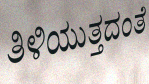
ತಿಳಿಯುತ್ತದಂತೆ